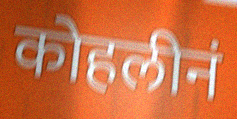
कोहलीनं